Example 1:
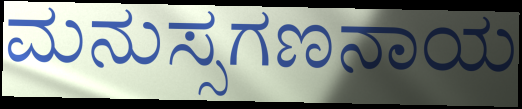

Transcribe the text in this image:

ಮನುಸ್ಸಗಣನಾಯ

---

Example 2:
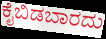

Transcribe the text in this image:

ಕೈಬಿಡಬಾರದು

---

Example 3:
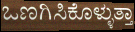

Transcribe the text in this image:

ಒಣಗಿಸಿಕೊಳ್ಳುತ್ತಾ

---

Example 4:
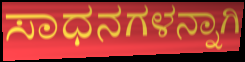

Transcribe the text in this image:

ಸಾಧನಗಳನ್ನಾಗಿ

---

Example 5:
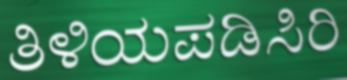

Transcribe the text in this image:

ತಿಳಿಯಪಡಿಸಿರಿ